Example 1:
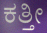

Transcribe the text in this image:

ಕತ್ತೀ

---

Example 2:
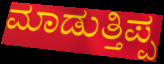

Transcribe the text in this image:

ಮಾಡುತ್ತಿಪ್ಪ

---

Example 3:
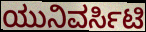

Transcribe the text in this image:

ಯುನಿವರ್ಸಿಟಿ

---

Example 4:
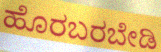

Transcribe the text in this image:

ಹೊರಬರಬೇಡಿ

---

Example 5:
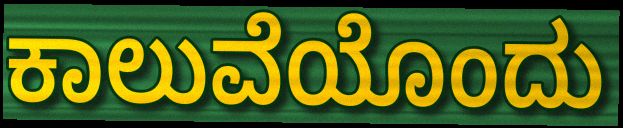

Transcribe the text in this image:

ಕಾಲುವೆಯೊಂದು